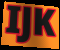
IJK